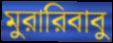
মুরারিবাবু